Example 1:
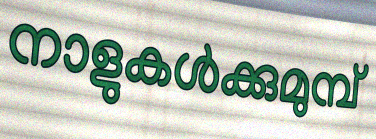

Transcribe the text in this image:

നാളുകൾക്കുമുമ്പ്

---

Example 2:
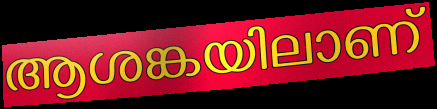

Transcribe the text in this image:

ആശങ്കയിലാണ്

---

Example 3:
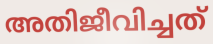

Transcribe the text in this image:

അതിജീവിച്ചത്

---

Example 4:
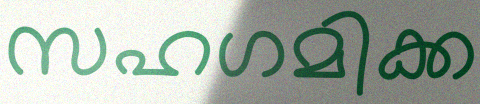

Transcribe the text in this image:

സഹഗമിക്ക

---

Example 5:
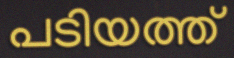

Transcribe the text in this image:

പടിയത്ത്